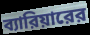
ব্যারিয়ারের